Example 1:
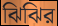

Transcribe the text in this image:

ঝিঝির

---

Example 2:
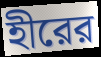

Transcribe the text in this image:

হীরের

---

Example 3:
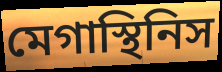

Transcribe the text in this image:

মেগাস্থিনিস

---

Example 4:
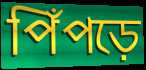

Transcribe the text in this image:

পিঁপড়ে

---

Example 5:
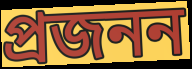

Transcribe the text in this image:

প্রজনন